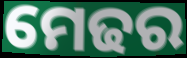
ମେଢର